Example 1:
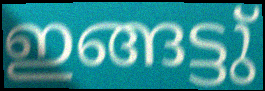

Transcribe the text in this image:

ഇങ്ങട്ടു്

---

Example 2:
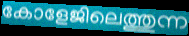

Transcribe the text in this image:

കോളേജിലെത്തുന്ന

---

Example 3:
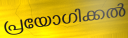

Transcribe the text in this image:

പ്രയോഗിക്കൽ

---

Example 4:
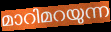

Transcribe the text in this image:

മാറിമറയുന്ന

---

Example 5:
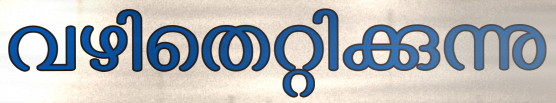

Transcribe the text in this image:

വഴിതെറ്റിക്കുന്നു